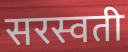
सरस्वती